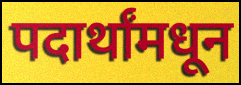
पदार्थांमधून